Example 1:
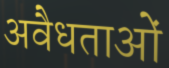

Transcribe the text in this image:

अवैधताओं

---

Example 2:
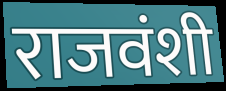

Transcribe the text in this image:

राजवंशी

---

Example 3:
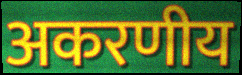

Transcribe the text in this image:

अकरणीय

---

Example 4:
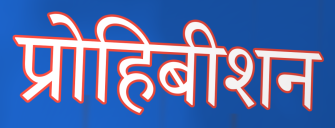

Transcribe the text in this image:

प्रोहिबीशन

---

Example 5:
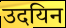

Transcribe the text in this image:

उदयिन